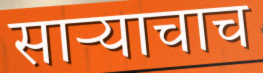
साऱ्याचाच